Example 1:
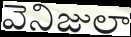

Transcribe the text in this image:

వెనిజులా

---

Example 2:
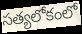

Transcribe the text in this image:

సత్యలోకంలో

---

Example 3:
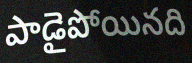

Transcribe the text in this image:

పాడైపోయినది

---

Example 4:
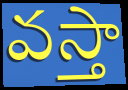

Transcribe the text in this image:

వస్తా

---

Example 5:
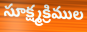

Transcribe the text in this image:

సూక్ష్మక్రిముల